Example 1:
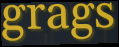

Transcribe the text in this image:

grags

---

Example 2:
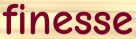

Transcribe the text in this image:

finesse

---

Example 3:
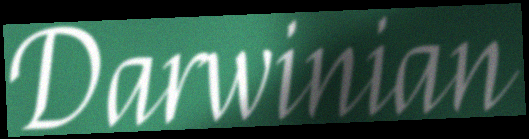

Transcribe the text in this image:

Darwinian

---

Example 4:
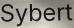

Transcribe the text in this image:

Sybert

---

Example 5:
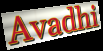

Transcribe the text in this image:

Avadhi